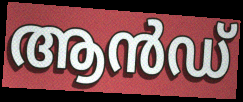
ആൻഡ്